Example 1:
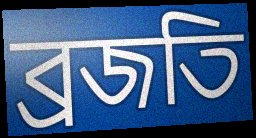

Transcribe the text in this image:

ব্রজতি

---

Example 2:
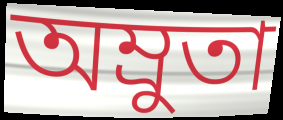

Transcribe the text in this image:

অম্রুতা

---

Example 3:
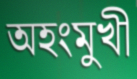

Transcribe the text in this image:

অহংমুখী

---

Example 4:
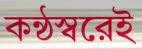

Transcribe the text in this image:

কন্ঠস্বরেই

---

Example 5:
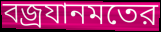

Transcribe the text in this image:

বজ্রযানমতের